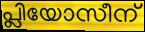
പ്ലിയോസീന്